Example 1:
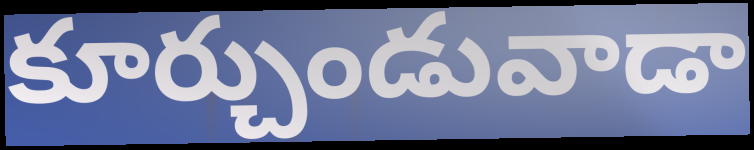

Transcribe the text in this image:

కూర్చుండువాడా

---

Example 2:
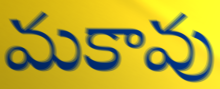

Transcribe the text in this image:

మకావు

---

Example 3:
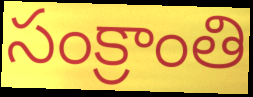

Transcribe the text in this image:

సంక్రాంతి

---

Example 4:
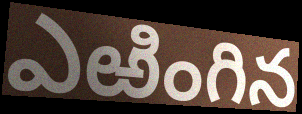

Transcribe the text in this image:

ఎఱింగిన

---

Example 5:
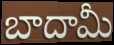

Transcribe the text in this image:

బాదామీ